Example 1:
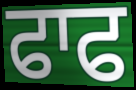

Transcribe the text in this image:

ਫਾਫ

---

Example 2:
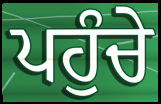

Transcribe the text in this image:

ਪਹੁੰਚੇ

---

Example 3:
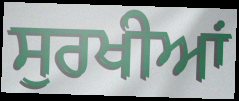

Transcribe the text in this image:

ਸੁਰਖੀਆਂ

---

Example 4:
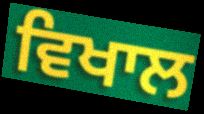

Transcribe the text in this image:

ਵਿਖਾਲ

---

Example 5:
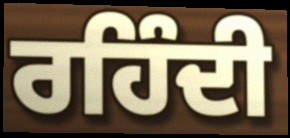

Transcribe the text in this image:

ਰਹਿੰਦੀ